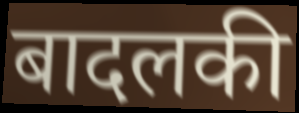
बादलकी